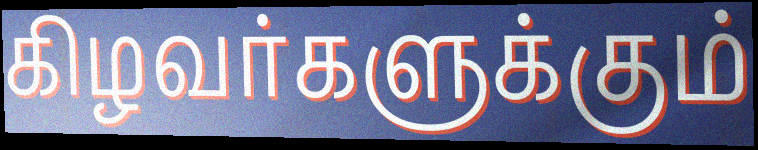
கிழவர்களுக்கும்